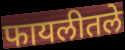
फायलीतले